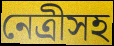
নেত্রীসহ